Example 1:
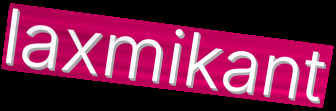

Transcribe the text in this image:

laxmikant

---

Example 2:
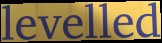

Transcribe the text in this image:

levelled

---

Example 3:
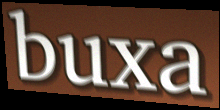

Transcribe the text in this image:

buxa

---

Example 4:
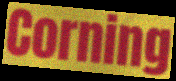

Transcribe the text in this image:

Corning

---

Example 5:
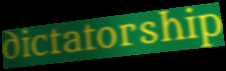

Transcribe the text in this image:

dictatorship